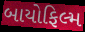
બાયોફિલ્મ